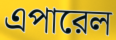
এপারেল